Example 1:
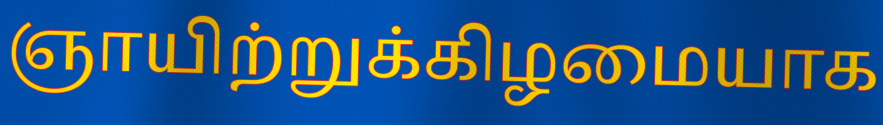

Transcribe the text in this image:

ஞாயிற்றுக்கிழமையாக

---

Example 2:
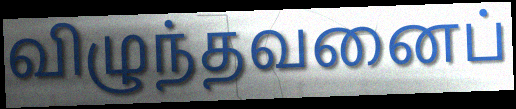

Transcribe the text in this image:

விழுந்தவனைப்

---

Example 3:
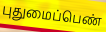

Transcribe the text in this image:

புதுமைப்பெண்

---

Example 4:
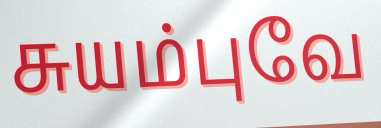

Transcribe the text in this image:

சுயம்புவே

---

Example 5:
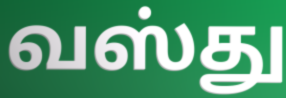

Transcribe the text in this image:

வஸ்து